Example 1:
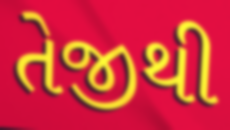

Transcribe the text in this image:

તેજીથી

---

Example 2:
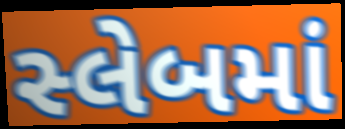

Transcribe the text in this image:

સ્લેબમાં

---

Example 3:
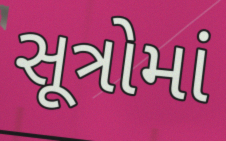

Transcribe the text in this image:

સૂત્રોમાં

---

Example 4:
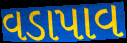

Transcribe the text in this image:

વડાપાવ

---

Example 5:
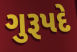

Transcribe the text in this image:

ગુરૂપદે